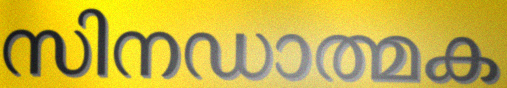
സിനഡാത്മക